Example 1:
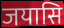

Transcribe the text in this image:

जयासि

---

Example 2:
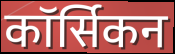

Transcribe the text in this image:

कॉर्सिकन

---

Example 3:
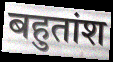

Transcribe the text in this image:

बहुतांश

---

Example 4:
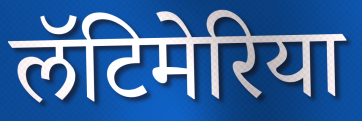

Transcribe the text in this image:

लॅटिमेरिया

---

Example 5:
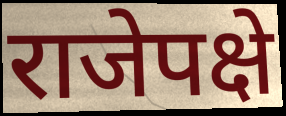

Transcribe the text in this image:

राजेपक्षे